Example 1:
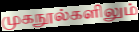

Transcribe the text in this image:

முகநூல்களிலும்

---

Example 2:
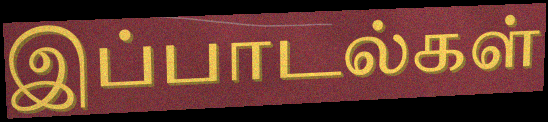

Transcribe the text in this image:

இப்பாடல்கள்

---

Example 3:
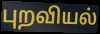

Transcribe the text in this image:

புறவியல்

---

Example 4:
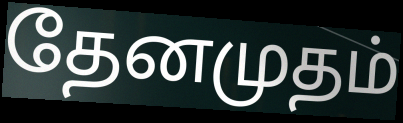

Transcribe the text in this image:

தேனமுதம்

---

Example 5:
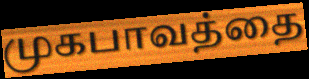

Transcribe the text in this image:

முகபாவத்தை